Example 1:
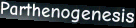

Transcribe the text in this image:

Parthenogenesis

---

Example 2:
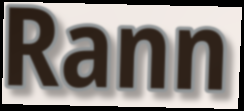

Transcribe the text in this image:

Rann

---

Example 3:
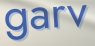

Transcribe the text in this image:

garv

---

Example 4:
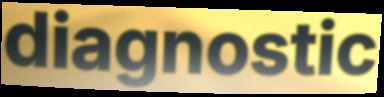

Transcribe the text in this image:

diagnostic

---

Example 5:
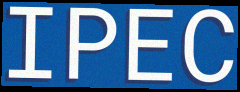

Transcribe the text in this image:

IPEC